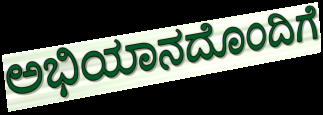
ಅಭಿಯಾನದೊಂದಿಗೆ